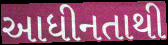
આધીનતાથી